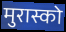
मुरास्को